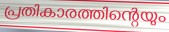
പ്രതികാരത്തിന്റെയും